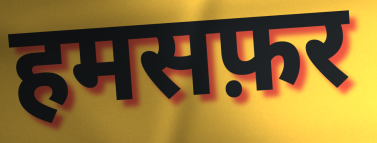
हमसफ़र